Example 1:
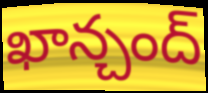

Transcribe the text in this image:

ఖాన్చంద్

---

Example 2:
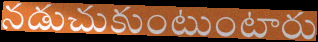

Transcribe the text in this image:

నడుచుకుంటుంటారు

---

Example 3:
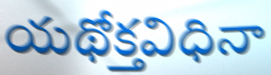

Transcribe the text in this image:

యథోక్తవిధినా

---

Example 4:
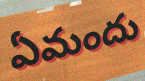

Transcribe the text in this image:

ఏమందు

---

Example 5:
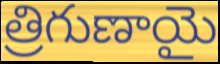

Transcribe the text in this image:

త్రిగుణాయై